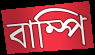
বাম্পি